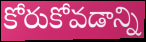
కోరుకోవడాన్ని